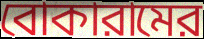
বোকারামের